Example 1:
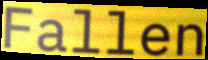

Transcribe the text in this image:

Fallen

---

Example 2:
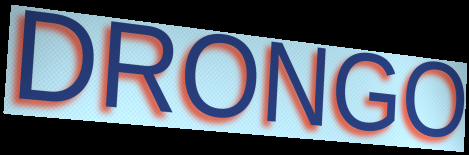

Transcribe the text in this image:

DRONGO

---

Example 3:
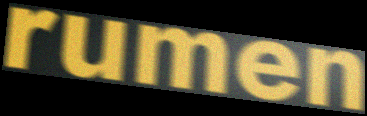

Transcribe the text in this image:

rumen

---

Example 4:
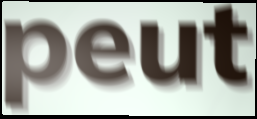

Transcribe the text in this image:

peut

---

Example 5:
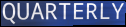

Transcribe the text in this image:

QUARTERLY